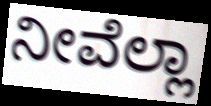
ನೀವೆಲ್ಲಾ